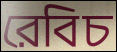
রেবিচ